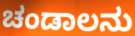
ಚಂಡಾಲನು